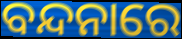
ବନ୍ଦନାରେ